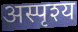
अस्पृश्य